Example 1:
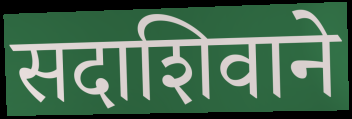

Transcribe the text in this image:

सदाशिवाने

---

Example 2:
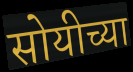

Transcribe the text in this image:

सोयीच्या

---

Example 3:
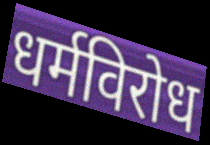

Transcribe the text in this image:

धर्मविरोध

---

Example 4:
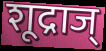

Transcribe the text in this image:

शूद्राज्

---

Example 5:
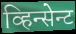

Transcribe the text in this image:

व्हिन्सेन्ट